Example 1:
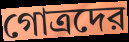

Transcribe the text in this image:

গোত্রদের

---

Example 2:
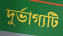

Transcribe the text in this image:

দুর্ভাগ্যটি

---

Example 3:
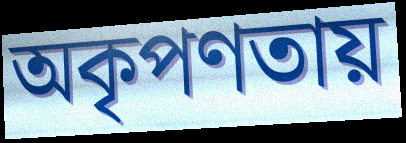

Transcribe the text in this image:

অকৃপণতায়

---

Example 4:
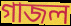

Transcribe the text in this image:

গাজল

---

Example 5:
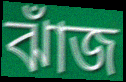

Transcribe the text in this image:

ঝাঁজ